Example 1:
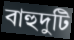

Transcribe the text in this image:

বাহুদুটি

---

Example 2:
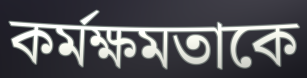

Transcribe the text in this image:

কর্মক্ষমতাকে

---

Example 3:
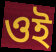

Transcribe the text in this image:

ওই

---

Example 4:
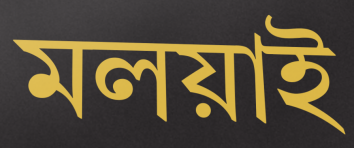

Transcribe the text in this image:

মলয়াই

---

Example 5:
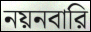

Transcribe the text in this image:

নয়নবারি